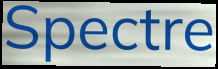
Spectre